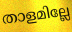
താളമില്ലേ